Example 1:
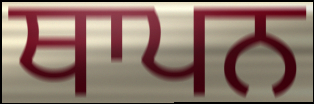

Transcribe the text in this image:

ਥਾਪਨ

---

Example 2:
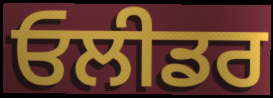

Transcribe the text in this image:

ਓਲੀਡਰ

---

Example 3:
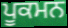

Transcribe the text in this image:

ਪੂਕਮਨ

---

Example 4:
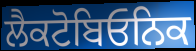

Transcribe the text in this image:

ਲੈਕਟੋਬਿਓਨਿਕ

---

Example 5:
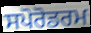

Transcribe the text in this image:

ਸਪੋਰੋਡਰਮ